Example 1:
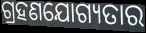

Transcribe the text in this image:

ଗ୍ରହଣଯୋଗ୍ୟତାର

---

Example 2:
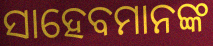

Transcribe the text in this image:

ସାହେବମାନଙ୍କ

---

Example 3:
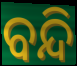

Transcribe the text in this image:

ବନ୍ଦି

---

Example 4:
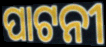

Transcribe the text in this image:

ପାଟନୀ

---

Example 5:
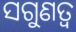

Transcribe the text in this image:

ସଗୁଣତ୍ଵ